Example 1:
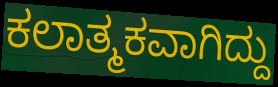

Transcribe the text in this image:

ಕಲಾತ್ಮಕವಾಗಿದ್ದು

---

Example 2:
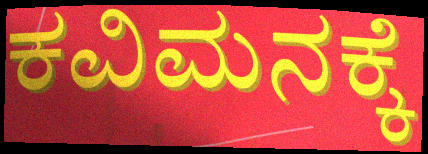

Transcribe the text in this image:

ಕವಿಮನಕ್ಕೆ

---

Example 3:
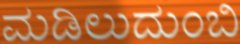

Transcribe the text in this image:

ಮಡಿಲುದುಂಬಿ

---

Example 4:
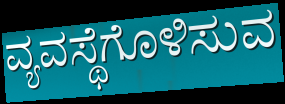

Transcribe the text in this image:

ವ್ಯವಸ್ಥೆಗೊಳಿಸುವ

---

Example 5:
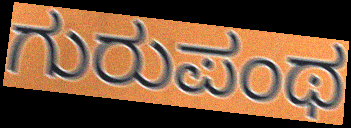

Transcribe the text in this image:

ಗುರುಪಂಥ